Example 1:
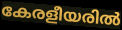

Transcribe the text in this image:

കേരളീയരിൽ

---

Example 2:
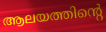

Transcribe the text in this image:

ആലയത്തിന്റെ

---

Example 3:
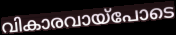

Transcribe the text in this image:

വികാരവായ്പോടെ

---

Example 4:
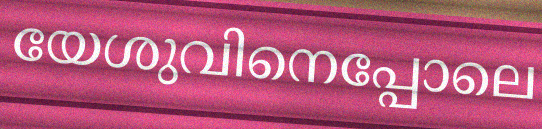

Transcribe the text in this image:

യേശുവിനെപ്പോലെ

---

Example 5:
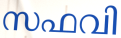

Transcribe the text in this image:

സഫവി